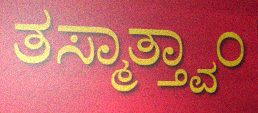
ತಸ್ಮಾತ್ತ್ವಾಂ